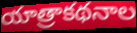
యాత్రాకథనాల